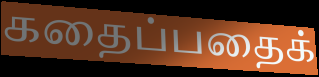
கதைப்பதைக்